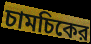
চামচিকের